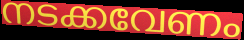
നടക്കവേണം